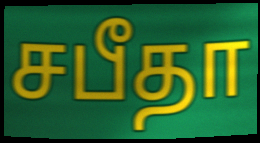
சபீதா